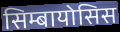
सिम्बायोसिस